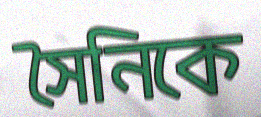
সৈনিকে